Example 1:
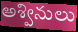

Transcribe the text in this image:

అశ్వినులు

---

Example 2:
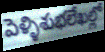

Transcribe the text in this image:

పెళ్ళిశుభలేఖల్లో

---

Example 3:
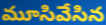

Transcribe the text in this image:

మూసివేసిన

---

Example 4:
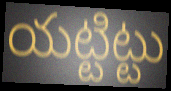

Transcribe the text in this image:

యట్టిట్టు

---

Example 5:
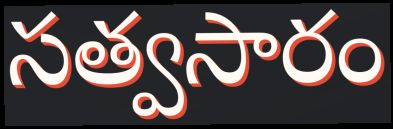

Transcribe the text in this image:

సత్వసారం